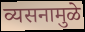
व्यसनामुळे